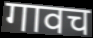
गावच